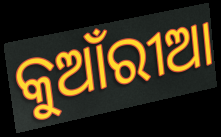
କୁଆଁରୀଆ